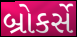
બ્રોકર્સે